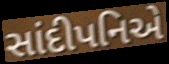
સાંદીપનિએ